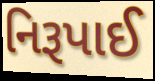
નિરૂપાઈ